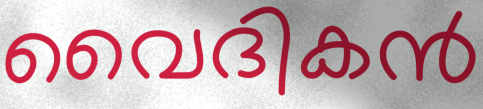
വൈദികൻ